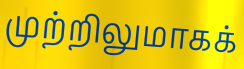
முற்றிலுமாகக்